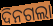
ଦିନଗଲା